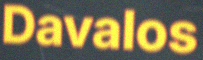
Davalos